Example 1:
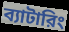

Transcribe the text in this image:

ব্যাটারিং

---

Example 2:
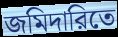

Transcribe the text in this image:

জমিদারিতে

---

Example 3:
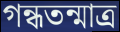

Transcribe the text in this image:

গন্ধতন্মাত্র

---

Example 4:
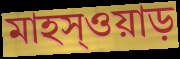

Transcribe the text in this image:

মাহস্ওয়াড়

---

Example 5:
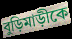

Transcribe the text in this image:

বুড়িমাড়ীকে